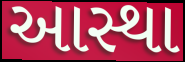
આસ્થા